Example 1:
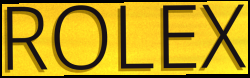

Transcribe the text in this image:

ROLEX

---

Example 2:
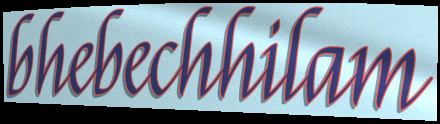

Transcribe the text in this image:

bhebechhilam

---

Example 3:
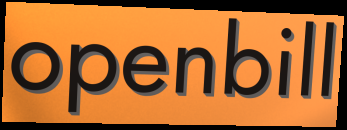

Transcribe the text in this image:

openbill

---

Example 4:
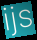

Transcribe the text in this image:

ijs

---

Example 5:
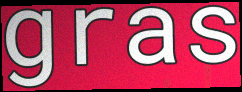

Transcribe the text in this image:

gras